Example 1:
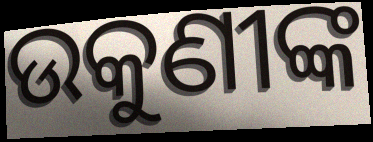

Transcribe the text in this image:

ଉକୁଣୀଙ୍କ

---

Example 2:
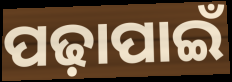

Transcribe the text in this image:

ପଢ଼ାପାଇଁ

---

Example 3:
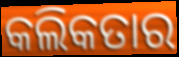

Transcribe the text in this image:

କଲିକତାର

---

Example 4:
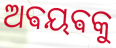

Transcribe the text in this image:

ଅଵୟଵକୁ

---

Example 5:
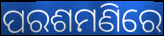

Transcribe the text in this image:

ପରଶମଣିରେ